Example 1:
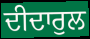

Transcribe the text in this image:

ਦੀਦਾਰੁਲ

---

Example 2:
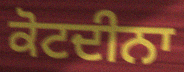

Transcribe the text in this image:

ਕੋਟਦੀਨਾ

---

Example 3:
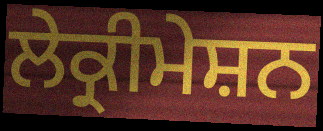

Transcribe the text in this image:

ਲੇਕ੍ਰੀਮੇਸ਼ਨ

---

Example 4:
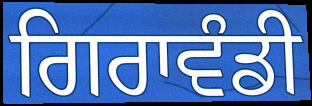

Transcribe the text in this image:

ਗਿਰਾਵੰਡੀ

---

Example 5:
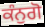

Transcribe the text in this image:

ਕੰਨੁਗੋ